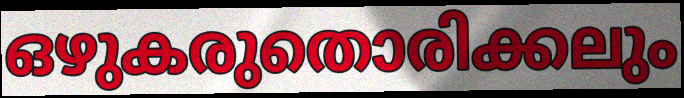
ഒഴുകരുതൊരിക്കലും